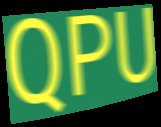
QPU